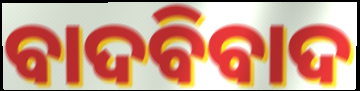
ବାଦବିବାଦ